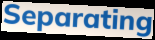
Separating